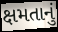
ક્ષમતાનું